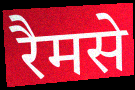
रैमसे